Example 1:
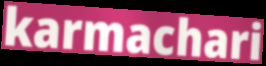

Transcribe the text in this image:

karmachari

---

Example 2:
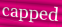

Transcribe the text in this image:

capped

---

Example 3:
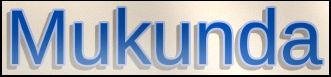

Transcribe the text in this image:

Mukunda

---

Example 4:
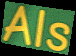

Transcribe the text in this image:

Als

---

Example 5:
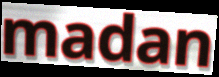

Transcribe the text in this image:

madan